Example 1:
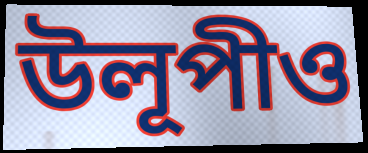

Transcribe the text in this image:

উলূপীও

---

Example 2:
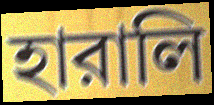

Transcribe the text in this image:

হারালি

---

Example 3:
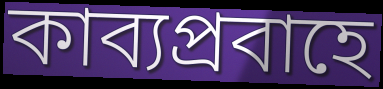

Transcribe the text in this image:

কাব্যপ্রবাহে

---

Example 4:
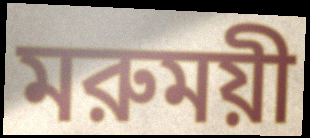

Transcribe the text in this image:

মরুময়ী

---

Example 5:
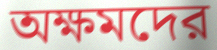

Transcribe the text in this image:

অক্ষমদের